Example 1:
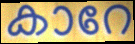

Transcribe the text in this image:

കാറേ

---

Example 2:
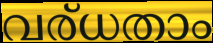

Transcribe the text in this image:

വര്ധതാം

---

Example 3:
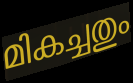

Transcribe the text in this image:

മികച്ചതും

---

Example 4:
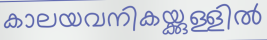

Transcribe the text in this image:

കാലയവനികയ്ക്കുള്ളിൽ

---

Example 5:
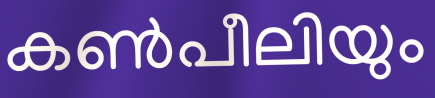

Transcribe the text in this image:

കൺപീലിയും